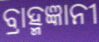
ବ୍ରାହ୍ମଜ୍ଞାନୀ